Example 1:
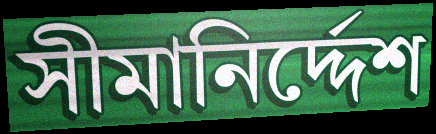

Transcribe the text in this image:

সীমানির্দ্দেশ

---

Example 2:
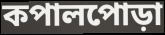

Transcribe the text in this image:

কপালপোড়া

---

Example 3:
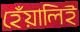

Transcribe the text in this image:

হেঁয়ালিই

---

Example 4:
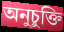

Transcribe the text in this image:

অনুচুক্তি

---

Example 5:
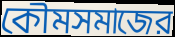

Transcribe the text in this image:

কৌমসমাজের